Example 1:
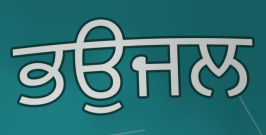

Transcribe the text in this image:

ਭਉਜਲ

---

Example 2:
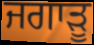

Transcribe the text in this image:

ਜਗਾੜੂ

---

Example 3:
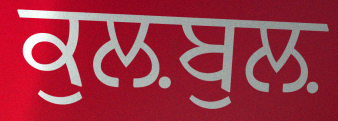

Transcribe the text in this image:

ਕੁਲ਼ਬੁਲ਼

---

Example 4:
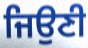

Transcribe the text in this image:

ਜਿਉਣੀ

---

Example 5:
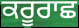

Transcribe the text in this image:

ਕਰੂਰਾਛ